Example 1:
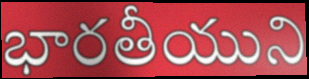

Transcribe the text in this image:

భారతీయుని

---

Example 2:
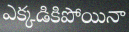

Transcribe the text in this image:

ఎక్కడికిపోయినా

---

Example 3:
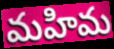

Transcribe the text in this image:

మహిమ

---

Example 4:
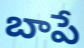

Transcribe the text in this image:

బాపే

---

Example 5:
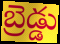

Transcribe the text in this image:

బ్రెడ్డు